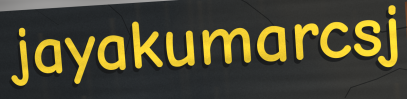
jayakumarcsj